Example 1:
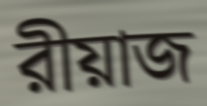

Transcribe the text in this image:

রীয়াজ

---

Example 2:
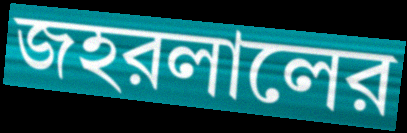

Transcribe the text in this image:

জহরলালের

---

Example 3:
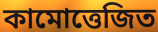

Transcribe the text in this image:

কামোত্তেজিত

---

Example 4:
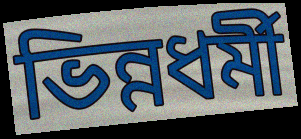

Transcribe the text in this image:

ভিন্নধর্মী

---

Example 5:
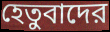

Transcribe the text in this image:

হেতুবাদের